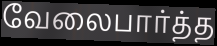
வேலைபார்த்த